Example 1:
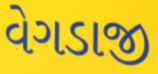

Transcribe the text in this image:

વેગડાજી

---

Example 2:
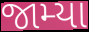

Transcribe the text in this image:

જામ્યા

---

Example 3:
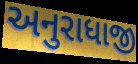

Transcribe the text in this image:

અનુરાધાજી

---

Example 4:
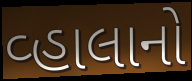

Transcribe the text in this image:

વ્હાલાનો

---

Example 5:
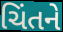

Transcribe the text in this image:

ચિંતને